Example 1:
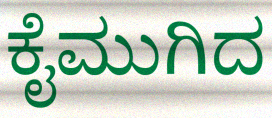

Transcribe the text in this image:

ಕೈಮುಗಿದ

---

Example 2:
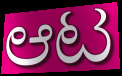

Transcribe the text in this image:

ಆಟ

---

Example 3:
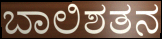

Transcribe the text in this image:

ಬಾಲಿಶತನ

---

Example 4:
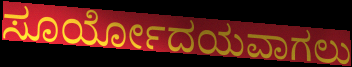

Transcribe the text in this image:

ಸೂರ್ಯೋದಯವಾಗಲು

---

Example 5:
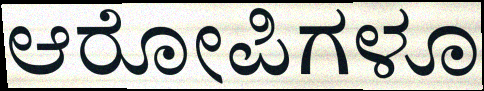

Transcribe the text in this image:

ಆರೋಪಿಗಳೂ